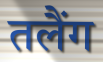
तलैंग